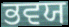
ਭਵਯ